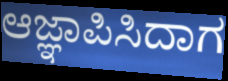
ಆಜ್ಞಾಪಿಸಿದಾಗ